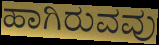
ಹಾಗಿರುವವು